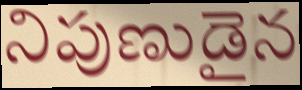
నిపుణుడైన